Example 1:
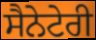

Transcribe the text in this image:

ਸੈਨੇਟੇਰੀ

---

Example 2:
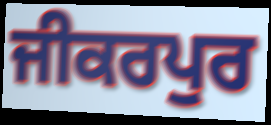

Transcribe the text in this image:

ਜੀਕਰਪੁਰ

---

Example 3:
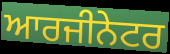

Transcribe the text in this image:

ਆਰਜੀਨੇਟਰ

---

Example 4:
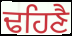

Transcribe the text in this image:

ਢਹਿਣੈ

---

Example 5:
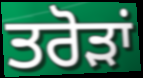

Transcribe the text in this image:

ਤਰੋੜਾਂ